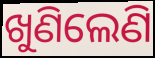
ଖୁଣିଲେଣି